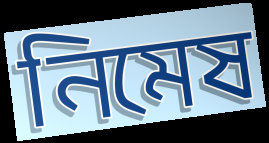
নিমেষ